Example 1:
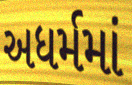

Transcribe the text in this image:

અધર્મમાં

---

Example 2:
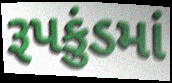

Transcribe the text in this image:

રૂપકુંડમાં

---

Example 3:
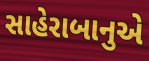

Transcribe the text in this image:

સાહેરાબાનુએ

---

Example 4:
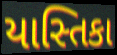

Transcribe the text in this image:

યાસ્તિકા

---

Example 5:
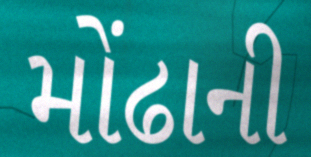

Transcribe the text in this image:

મોંઢાની